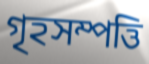
গৃহসম্পত্তি